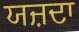
ਯਜ਼ਦਾ